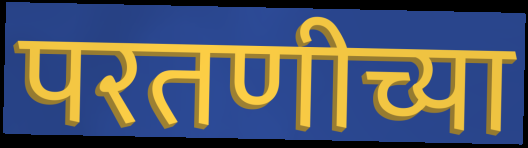
परतणीच्या